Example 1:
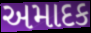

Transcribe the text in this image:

અમાદક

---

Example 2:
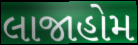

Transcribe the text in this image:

લાજાહોમ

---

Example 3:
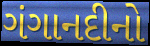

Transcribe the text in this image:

ગંગાનદીનો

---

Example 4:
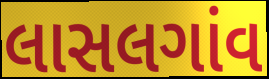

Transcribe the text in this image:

લાસલગાંવ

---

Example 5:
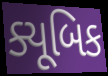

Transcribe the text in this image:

ક્યૂબિક